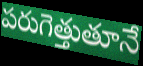
పరుగెత్తుతూనే